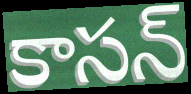
కాసన్